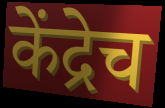
केंद्रेच